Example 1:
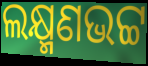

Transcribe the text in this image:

ଲକ୍ଷ୍ମଣଭଟ୍ଟ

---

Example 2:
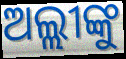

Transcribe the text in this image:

ଅଲ୍ଲୀଙ୍କୁ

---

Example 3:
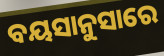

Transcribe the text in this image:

ବୟସାନୁସାରେ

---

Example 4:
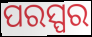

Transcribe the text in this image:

ପରସ୍ପର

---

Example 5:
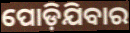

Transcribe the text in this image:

ପୋଡ଼ିଯିବାର